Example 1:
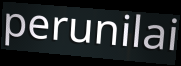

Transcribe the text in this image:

perunilai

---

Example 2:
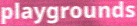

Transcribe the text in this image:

playgrounds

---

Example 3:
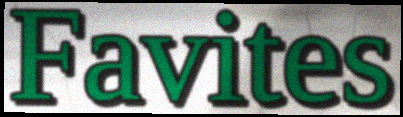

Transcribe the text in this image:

Favites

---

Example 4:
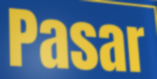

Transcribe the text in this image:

Pasar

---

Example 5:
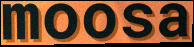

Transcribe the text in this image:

moosa